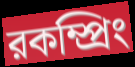
রকম্প্রিং